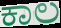
ಕಾಲ